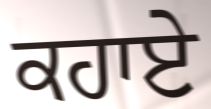
ਕਹਾਏ